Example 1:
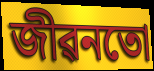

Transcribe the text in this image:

জীৱনতো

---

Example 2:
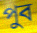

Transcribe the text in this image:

পুব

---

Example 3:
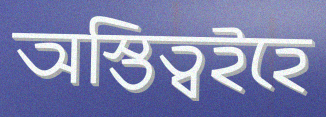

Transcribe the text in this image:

অস্তিত্বইহে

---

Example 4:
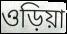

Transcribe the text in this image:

ওড়িয়া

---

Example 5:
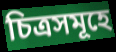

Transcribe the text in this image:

চিত্ৰসমূহে